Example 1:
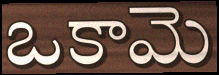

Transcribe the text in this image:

ఒకామె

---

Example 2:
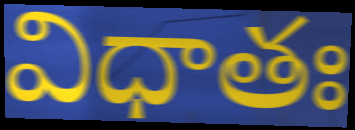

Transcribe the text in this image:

విధాతః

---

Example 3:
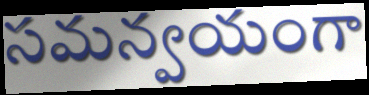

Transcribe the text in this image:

సమన్వయంగా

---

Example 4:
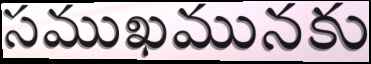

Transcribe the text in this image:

సముఖమునకు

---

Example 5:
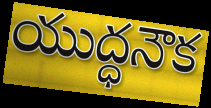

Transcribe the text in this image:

యుద్ధనౌక